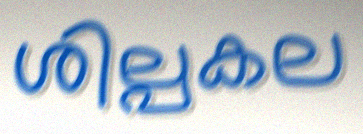
ശില്പകല